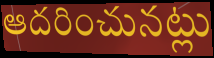
ఆదరించునట్లు